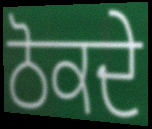
ਠੋਕਦੇ